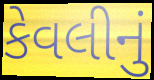
કેવલીનું